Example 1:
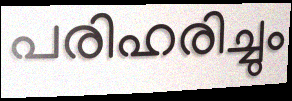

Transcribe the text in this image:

പരിഹരിച്ചും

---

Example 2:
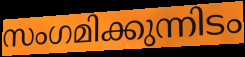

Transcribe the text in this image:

സംഗമിക്കുന്നിടം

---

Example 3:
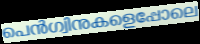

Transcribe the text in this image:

പെൻഗ്വിനുകളെപ്പോലെ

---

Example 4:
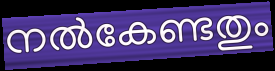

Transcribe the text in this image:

നൽകേണ്ടതും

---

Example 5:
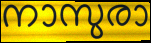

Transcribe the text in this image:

നാസുരാ